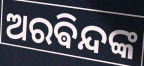
ଅରଵିନ୍ଦଙ୍କ